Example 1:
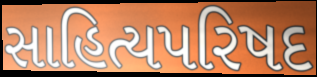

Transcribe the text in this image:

સાહિત્યપરિષદ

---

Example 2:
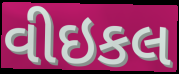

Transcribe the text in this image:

વીઇકલ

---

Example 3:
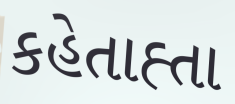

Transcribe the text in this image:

કહેતાહ્તા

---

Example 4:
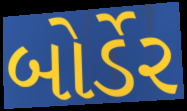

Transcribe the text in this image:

બોર્ડેર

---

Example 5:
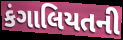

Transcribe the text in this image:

કંગાલિયતની